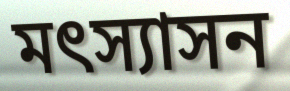
মৎস্যাসন